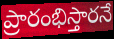
ప్రారంభిస్తారనే